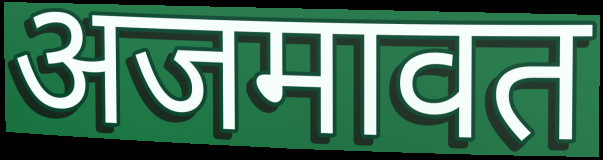
अजमावत